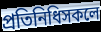
প্ৰতিনিধিসকলে